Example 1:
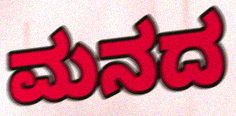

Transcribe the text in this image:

ಮನದ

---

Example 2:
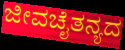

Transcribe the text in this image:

ಜೀವಚೈತನ್ಯದ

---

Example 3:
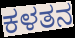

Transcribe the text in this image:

ಕಳತನ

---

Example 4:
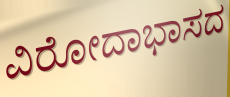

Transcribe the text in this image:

ವಿರೋದಾಭಾಸದ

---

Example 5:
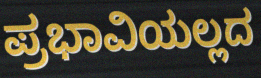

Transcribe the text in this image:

ಪ್ರಭಾವಿಯಲ್ಲದ